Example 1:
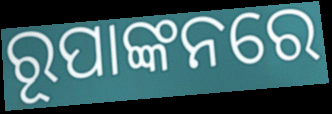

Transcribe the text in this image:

ରୂପାଙ୍କନରେ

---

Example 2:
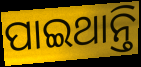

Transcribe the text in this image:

ପାଇଥାନ୍ତି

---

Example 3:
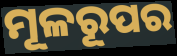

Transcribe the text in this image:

ମୂଳରୂପର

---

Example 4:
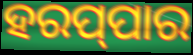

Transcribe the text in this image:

ହରପ୍‌ପାର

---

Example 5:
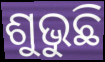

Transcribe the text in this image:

ଶୁଭୁଛି